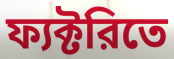
ফ্যক্টরিতে